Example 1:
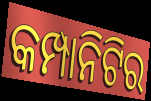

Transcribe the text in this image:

କମ୍ପାନିଟିର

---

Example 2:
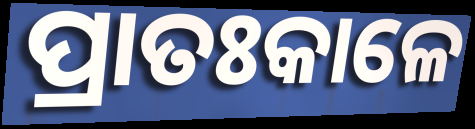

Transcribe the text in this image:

ପ୍ରାତଃକାଳେ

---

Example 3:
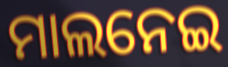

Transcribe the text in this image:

ମାଲନେଇ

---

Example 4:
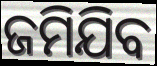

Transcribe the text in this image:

ଜମିଯିବ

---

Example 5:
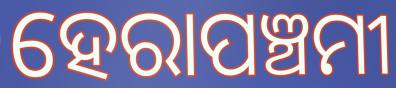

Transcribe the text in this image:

ହେରାପଞ୍ଚମୀ